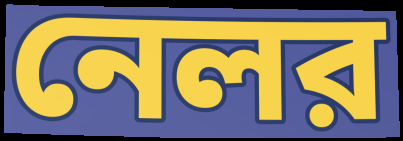
নেলর